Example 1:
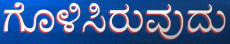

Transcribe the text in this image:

ಗೊಳಿಸಿರುವುದು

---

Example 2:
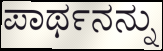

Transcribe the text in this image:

ಪಾರ್ಥನನ್ನು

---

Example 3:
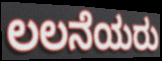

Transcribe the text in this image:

ಲಲನೆಯರು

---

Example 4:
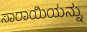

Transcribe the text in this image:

ಸಾರಾಯಿಯನ್ನು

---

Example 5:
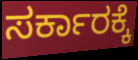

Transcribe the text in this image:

ಸರ್ಕಾರಕ್ಕೆ